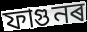
ফাগুনৰ